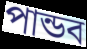
পান্ডব